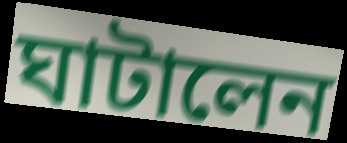
ঘাটালেন